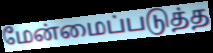
மேன்மைப்படுத்த